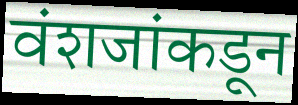
वंशजांकडून